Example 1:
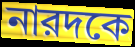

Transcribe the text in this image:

নারদকে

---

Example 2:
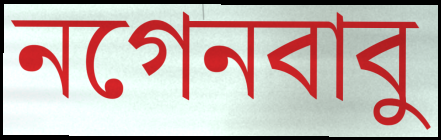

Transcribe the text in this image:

নগেনবাবু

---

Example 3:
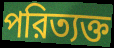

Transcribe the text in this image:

পরিত্যক্ত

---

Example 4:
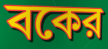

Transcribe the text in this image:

বকের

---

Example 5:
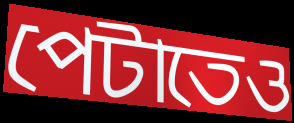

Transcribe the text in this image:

পেটাতেও